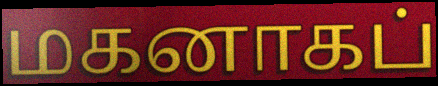
மகனாகப்